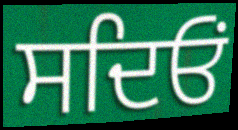
ਸਦਿਓਂ